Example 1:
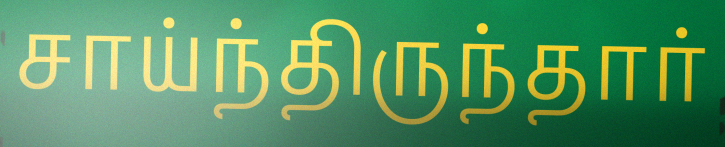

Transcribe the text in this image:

சாய்ந்திருந்தார்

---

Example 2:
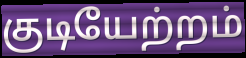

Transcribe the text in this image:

குடியேற்றம்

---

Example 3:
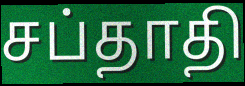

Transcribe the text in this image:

சப்தாதி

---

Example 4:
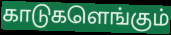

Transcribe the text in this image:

காடுகளெங்கும்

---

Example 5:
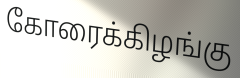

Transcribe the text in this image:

கோரைக்கிழங்கு